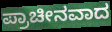
ಪ್ರಾಚೀನವಾದ